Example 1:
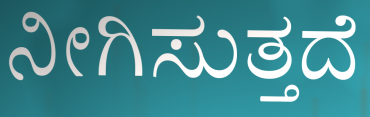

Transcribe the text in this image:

ನೀಗಿಸುತ್ತದೆ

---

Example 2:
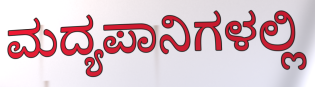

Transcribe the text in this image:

ಮದ್ಯಪಾನಿಗಳಲ್ಲಿ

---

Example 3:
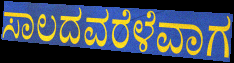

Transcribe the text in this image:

ಸಾಲದವರೆಳೆವಾಗ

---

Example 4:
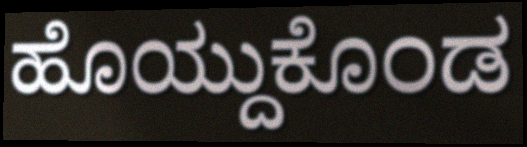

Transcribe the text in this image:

ಹೊಯ್ದುಕೊಂಡ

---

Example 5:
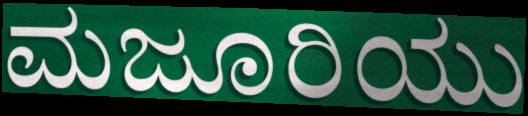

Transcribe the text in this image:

ಮಜೂರಿಯು